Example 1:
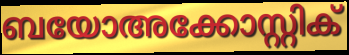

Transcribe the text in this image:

ബയോഅക്കോസ്റ്റിക്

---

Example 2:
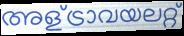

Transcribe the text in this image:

അള്ട്രാവയലറ്റ്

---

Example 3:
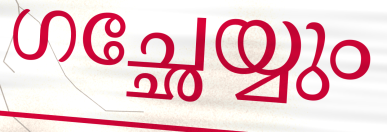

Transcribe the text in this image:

ഗച്ഛേയ്യും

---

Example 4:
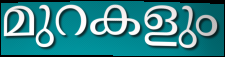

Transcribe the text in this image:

മുറകളും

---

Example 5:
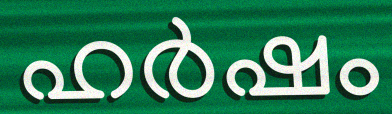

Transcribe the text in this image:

ഹർഷം